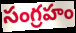
సంగ్రహం